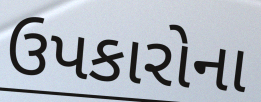
ઉપકારોના